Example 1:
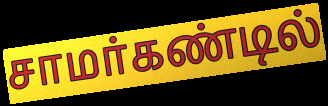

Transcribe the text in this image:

சாமர்கண்டில்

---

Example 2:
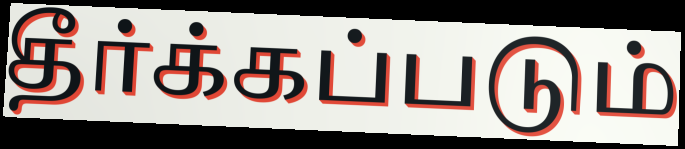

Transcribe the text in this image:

தீர்க்கப்படும்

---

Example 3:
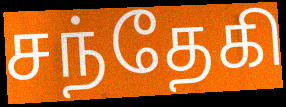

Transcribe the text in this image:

சந்தேகி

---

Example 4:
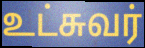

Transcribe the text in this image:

உட்சுவர்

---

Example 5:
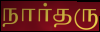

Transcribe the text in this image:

நார்தரு